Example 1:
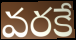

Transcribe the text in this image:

వరకే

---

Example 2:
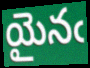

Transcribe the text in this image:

యైనఁ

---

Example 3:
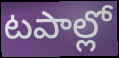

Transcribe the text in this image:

టపాల్లో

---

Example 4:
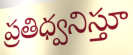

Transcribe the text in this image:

ప్రతిధ్వనిస్తూ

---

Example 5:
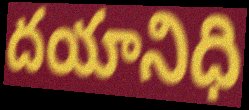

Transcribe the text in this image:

దయానిధి